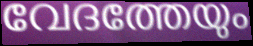
വേദത്തേയും